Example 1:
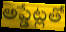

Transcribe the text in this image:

అప్డేట్లతో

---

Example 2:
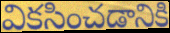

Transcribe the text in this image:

వికసించడానికి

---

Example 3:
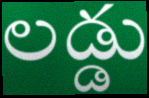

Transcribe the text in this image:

లడ్డు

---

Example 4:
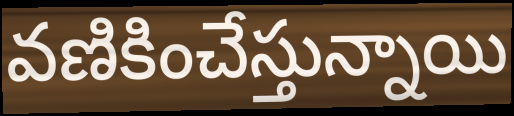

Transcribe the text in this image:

వణికించేస్తున్నాయి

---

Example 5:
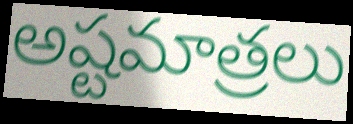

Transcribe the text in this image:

అష్టమాత్రలు